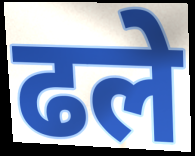
ढले